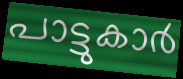
പാട്ടുകാർ